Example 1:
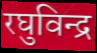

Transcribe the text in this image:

रघुविन्द्र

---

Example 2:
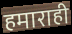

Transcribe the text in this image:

हमाराही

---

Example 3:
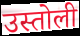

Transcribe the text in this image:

उस्तोली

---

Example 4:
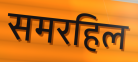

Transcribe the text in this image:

समरहिल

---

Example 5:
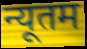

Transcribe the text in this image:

न्यूतम